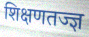
शिक्षणतज्ज्ञ